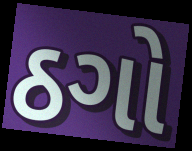
ઠગો